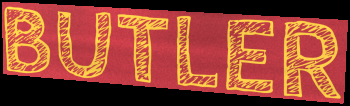
BUTLER